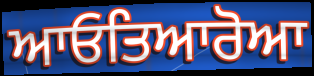
ਆਓਤਿਆਰੋਆ